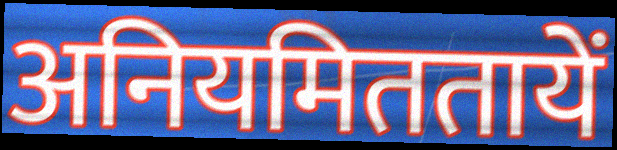
अनियमिततायें